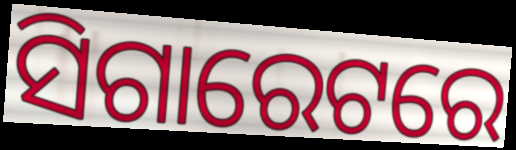
ସିଗାରେଟରେ